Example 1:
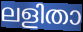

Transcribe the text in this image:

ലളിതാ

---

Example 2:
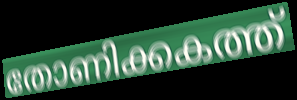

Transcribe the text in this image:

തോണിക്കകത്ത്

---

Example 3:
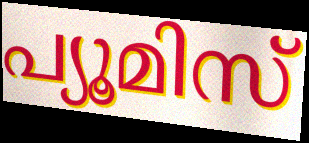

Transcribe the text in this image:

പ്യൂമിസ്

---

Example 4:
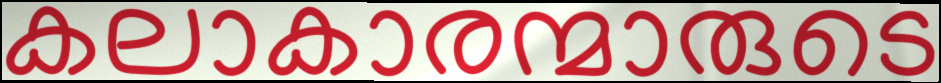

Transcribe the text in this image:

കലാകാരന്മാരുടെ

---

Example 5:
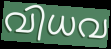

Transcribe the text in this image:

വിധവ